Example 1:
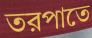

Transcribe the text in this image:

তরপাতে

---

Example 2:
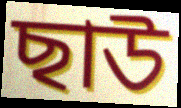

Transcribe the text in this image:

ছাউ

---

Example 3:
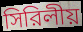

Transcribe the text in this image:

সিরিলীয়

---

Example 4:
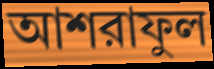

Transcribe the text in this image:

আশরাফুল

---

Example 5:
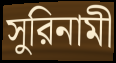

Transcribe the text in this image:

সুরিনামী